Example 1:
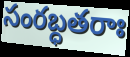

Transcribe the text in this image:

సంరబ్ధతరాః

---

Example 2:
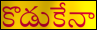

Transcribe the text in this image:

కొడుకేనా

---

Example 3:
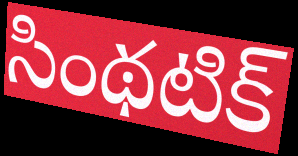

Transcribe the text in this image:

సింథటిక్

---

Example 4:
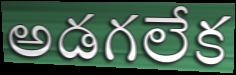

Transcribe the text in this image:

అడగలేక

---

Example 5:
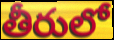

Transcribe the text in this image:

తీరులో